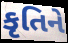
કૃતિને